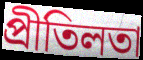
প্রীতিলতা